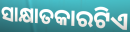
ସାକ୍ଷାତକାରଟିଏ